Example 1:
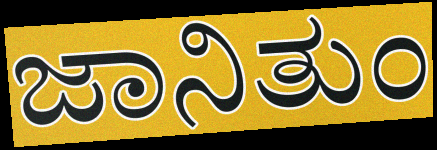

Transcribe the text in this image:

ಜಾನಿತುಂ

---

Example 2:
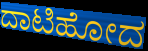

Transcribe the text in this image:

ದಾಟಿಹೋದ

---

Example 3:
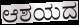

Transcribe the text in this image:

ಆಶಯದ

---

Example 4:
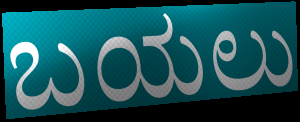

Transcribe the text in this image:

ಬಯಲು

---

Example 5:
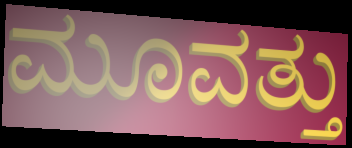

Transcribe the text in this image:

ಮೂವತ್ತು